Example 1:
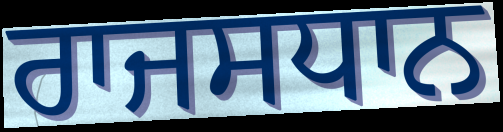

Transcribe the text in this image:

ਰਾਜਸਧਾਨ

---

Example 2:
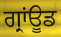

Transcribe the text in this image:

ਗ੍ਰਾਂਊਡ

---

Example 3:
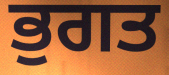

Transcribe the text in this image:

ਭੁਗਤ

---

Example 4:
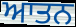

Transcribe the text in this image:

ਆਤਨ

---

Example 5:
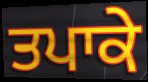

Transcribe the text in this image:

ਤਪਾਕੇ